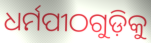
ଧର୍ମପୀଠଗୁଡ଼ିକୁ